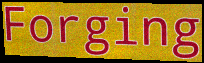
Forging